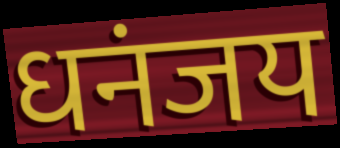
धनंजय